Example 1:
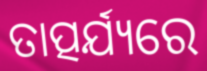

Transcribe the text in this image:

ତାତ୍ପର୍ଯ୍ୟରେ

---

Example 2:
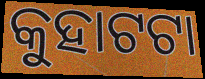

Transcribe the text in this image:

କୁହାଟଟା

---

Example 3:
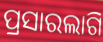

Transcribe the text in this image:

ପ୍ରସାରଲାଗି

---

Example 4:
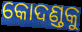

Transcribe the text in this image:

କୋଦଣ୍ଡକୁ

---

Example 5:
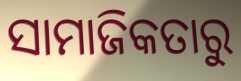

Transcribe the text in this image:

ସାମାଜିକତାରୁ